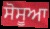
ਸੋਸੂਆ